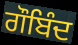
ਗੌਬਿੰਦ